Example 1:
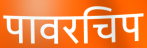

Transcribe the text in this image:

पावरचिप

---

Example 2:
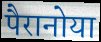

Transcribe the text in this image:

पैरानोया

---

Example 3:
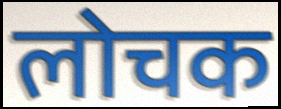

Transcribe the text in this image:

लोचक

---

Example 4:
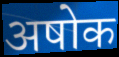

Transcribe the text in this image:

अषोक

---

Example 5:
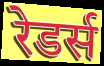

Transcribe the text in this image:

रेडर्स